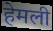
हेमली